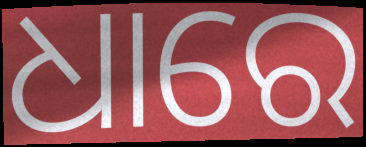
ଧାରେ